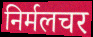
निर्मलचर